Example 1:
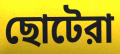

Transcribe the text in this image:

ছোটেরা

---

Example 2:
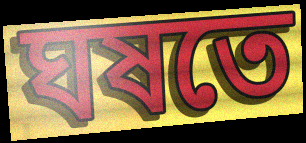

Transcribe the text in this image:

ঘষতে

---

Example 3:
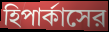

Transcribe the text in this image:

হিপার্কাসের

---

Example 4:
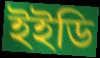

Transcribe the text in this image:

ইইডি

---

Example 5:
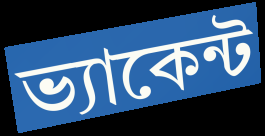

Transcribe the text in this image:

ভ্যাকেন্ট